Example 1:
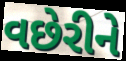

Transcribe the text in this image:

વછેરીને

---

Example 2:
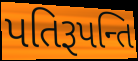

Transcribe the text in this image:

પતિરૂપન્તિ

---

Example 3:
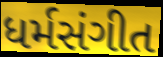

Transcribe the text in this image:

ધર્મસંગીત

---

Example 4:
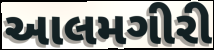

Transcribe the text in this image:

આલમગીરી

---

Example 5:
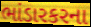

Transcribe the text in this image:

ભાંડારકરના